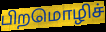
பிறமொழிச்